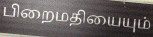
பிறைமதியையும்